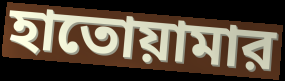
হাতোয়ামার